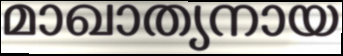
മാഖാത്യനായ